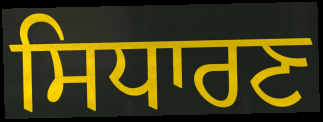
ਸਿਧਾਰਣ